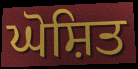
ਘੋਸ਼ਿਤ